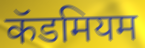
कॅडमियम